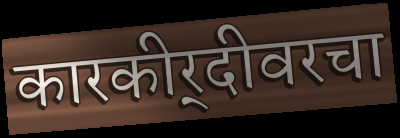
कारकीर्दीवरचा